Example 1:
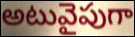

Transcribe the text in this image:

అటువైపుగా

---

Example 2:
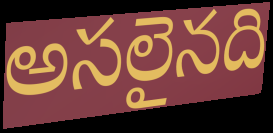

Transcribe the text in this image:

అసలైనది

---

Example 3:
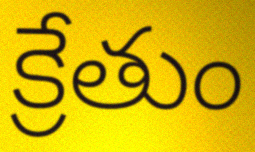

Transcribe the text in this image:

క్రేతుం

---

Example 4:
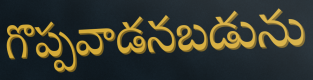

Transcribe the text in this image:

గొప్పవాడనబడును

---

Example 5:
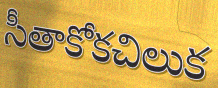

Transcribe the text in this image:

సీతాకోకచిలుక